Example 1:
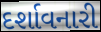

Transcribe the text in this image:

દર્શાવનારી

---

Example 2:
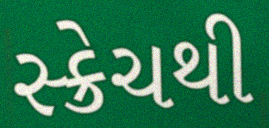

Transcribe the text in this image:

સ્ક્રેચથી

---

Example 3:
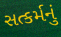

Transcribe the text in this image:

સત્કર્મનું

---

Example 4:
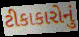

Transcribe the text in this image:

ટીકાકારોનું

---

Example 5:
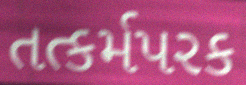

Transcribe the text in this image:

તત્કર્મપરક